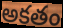
అకతం